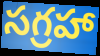
సగ్రహా